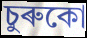
চুৰুকো